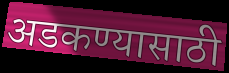
अडकण्यासाठी